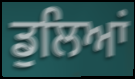
ਡੁਲਿਆਂ